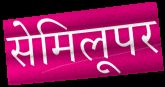
सेमिलूपर